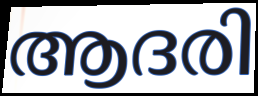
ആദരി